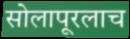
सोलापूरलाच